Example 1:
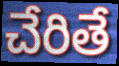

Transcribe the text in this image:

చేరితే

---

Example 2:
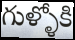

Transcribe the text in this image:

గుళ్ళోకి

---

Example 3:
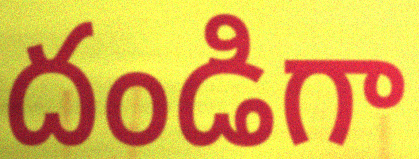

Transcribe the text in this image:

దండిగా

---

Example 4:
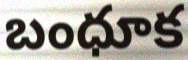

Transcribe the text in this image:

బంధూక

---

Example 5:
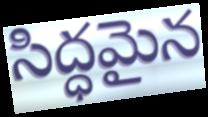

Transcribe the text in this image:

సిద్ధమైన